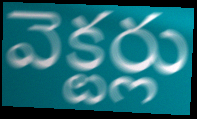
వెక్టర్లు